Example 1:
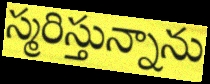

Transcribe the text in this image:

స్మరిస్తున్నాను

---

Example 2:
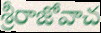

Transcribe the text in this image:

శ్రీరాజోవాచ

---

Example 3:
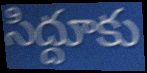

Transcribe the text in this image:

సిద్దూకు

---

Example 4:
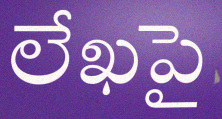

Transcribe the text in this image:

లేఖపై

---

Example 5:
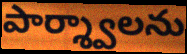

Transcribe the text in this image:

పార్శ్వాలను